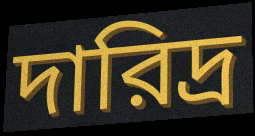
দারিদ্র